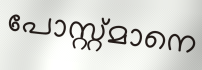
പോസ്റ്റ്മാനെ